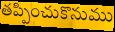
తప్పించుకొనుము